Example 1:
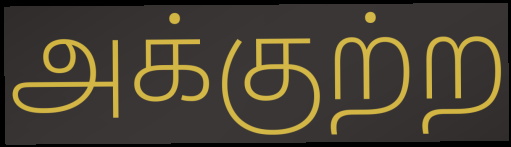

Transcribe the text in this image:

அக்குற்ற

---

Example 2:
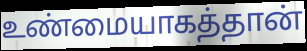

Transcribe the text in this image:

உண்மையாகத்தான்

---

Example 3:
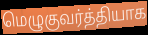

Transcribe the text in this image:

மெழுகுவர்த்தியாக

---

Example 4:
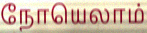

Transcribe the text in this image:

நோயெலாம்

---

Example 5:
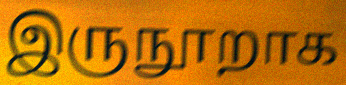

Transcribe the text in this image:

இருநூறாக